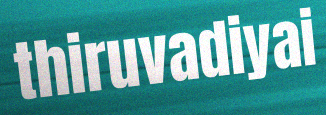
thiruvadiyai